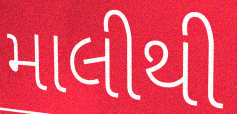
માલીથી